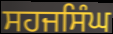
ਸਹਜਸਿੰਘ